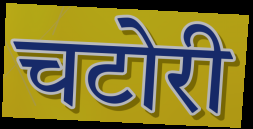
चटोरी